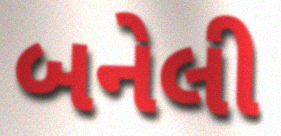
બનેલી